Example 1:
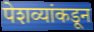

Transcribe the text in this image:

पेशव्यांकडून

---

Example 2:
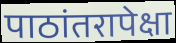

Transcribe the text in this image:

पाठांतरापेक्षा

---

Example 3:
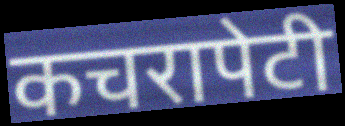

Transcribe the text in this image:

कचरापेटी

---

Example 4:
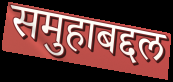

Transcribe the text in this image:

समुहाबद्दल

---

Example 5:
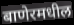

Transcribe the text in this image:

बाणेरमधील